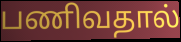
பணிவதால்